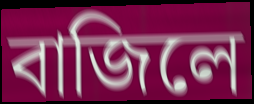
বাজিলে